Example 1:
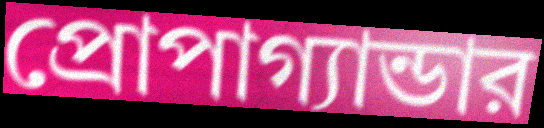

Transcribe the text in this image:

প্রোপাগ্যান্ডার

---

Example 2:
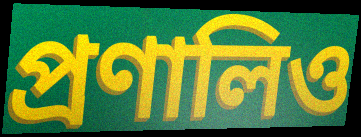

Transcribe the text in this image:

প্রণালিও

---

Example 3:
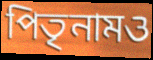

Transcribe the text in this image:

পিতৃনামও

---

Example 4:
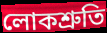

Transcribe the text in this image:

লোকশ্রুতি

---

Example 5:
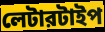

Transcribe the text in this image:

লেটারটাইপ